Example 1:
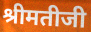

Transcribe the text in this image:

श्रीमतीजी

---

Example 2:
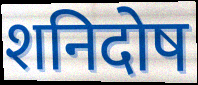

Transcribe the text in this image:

शनिदोष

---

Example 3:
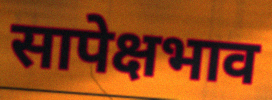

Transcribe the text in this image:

सापेक्षभाव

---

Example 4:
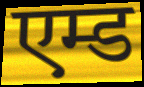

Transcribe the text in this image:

एम्ड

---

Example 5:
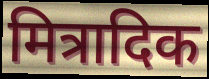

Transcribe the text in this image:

मित्रादिक